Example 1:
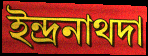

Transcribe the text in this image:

ইন্দ্রনাথদা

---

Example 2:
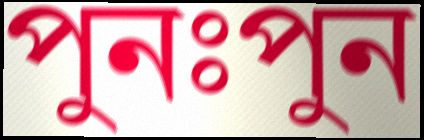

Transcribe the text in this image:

পুনঃপুন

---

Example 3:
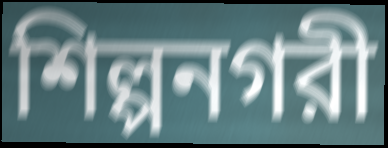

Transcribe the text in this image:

শিল্পনগরী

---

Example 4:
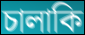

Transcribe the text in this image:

চালাকি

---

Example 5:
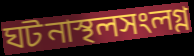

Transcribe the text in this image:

ঘটনাস্থলসংলগ্ন